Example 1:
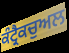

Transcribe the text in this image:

ਕੰਟ੍ਰੈਕਚੁਅਲ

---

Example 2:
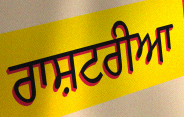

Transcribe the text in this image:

ਰਾਸ਼ਟਰੀਆ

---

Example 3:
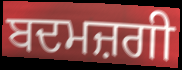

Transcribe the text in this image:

ਬਦਮਜ਼ਗੀ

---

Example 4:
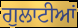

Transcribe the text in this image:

ਗੁਲਾਟੀਆਂ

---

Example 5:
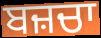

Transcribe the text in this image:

ਬਜ਼ਚਾ